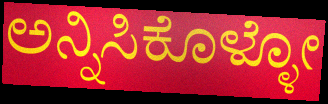
ಅನ್ನಿಸಿಕೊಳ್ಳೋ